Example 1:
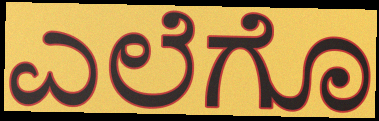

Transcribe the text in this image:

ಎಲೆಗೊ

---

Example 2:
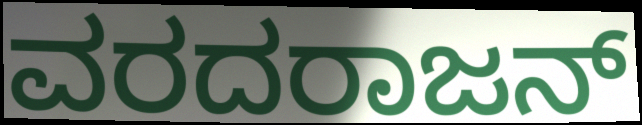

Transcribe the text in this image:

ವರದರಾಜನ್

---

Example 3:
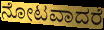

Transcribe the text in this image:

ನೋಟವಾದರೆ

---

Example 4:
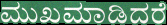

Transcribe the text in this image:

ಮುಖಮಾಡಿದರೆ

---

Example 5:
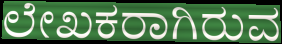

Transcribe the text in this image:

ಲೇಖಕರಾಗಿರುವ